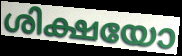
ശിക്ഷയോ